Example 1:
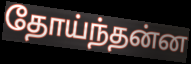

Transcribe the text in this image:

தோய்ந்தன்ன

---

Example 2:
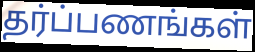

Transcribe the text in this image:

தர்ப்பணங்கள்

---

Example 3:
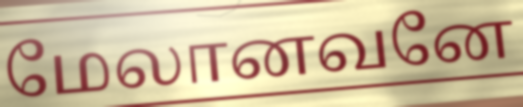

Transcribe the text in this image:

மேலானவனே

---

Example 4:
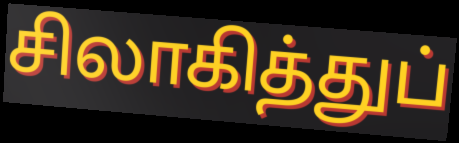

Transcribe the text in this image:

சிலாகித்துப்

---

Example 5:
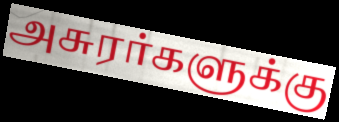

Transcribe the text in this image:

அசுரர்களுக்கு